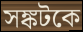
সঙ্কটকে